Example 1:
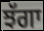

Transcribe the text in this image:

ਝੱਗਾ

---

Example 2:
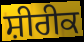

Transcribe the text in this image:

ਸ਼ੀਰੀਕ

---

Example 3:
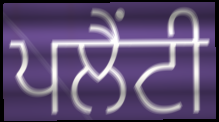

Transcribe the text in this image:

ਪਲੈਂਟੀ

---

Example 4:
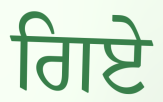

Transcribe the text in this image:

ਗਿਏ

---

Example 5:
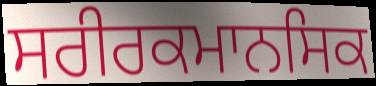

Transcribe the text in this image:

ਸਰੀਰਕਮਾਨਸਿਕ